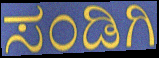
ಸಂಡಿಗಿ